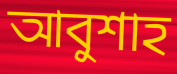
আবুশাহ